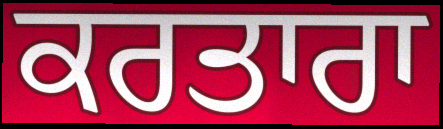
ਕਰਤਾਰਾ